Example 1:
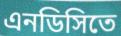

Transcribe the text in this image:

এনডিসিতে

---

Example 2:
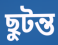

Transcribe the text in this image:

ছুটন্ত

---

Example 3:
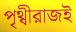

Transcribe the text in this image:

পৃথ্বীরাজই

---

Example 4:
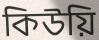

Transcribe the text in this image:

কিউয়ি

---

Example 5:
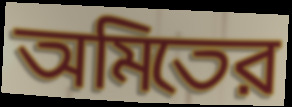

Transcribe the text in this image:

অমিতের